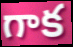
గాక